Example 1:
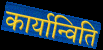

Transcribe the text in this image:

कार्यान्विति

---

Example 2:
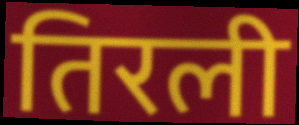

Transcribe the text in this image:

तिरली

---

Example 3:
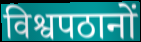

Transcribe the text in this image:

विश्वपठानों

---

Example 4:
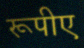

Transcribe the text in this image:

रूपीए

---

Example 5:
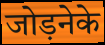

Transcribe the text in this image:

जोड़नेके